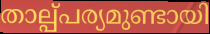
താല്പ്പര്യമുണ്ടായി